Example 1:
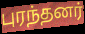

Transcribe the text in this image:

புரந்தனர்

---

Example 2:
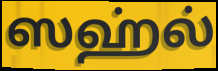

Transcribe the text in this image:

ஸஹ்ல்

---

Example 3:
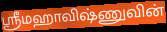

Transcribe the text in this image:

ஸ்ரீமஹாவிஷ்ணுவின்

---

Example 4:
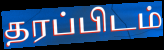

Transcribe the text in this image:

தரப்பிடம்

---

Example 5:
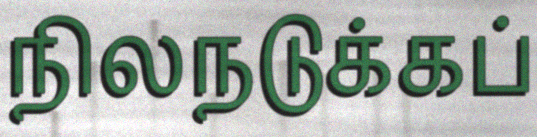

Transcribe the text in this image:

நிலநடுக்கப்